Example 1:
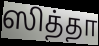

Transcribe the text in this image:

ஸித்தா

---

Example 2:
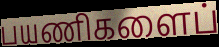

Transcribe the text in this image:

பயணிகளைப்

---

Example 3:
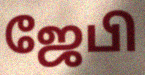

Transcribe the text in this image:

ஜேபி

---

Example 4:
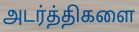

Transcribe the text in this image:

அடர்த்திகளை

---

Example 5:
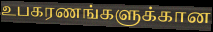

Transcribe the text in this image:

உபகரணங்களுக்கான